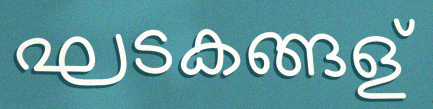
ഘടകങ്ങള്